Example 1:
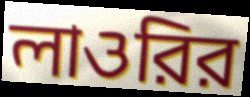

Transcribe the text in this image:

লাওরির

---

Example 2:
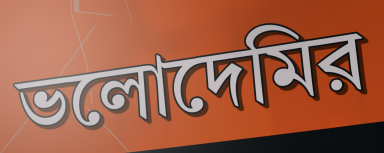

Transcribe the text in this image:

ভলোদেমির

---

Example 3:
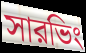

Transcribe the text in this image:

সারভিং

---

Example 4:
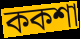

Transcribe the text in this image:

ককশা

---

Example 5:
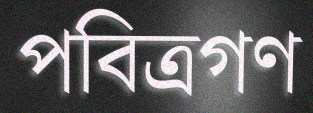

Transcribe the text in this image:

পবিত্রগণ